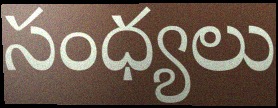
సంధ్యలు